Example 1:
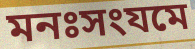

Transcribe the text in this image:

মনঃসংযমে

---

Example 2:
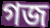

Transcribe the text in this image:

গজ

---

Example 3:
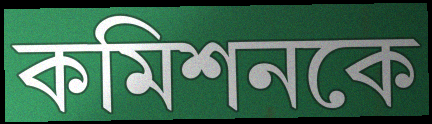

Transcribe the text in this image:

কমিশনকে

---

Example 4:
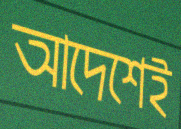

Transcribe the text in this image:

আদেশেই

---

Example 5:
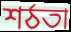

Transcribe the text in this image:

শঠতা